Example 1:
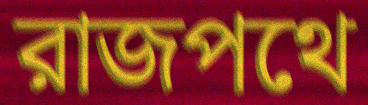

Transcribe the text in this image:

রাজপথে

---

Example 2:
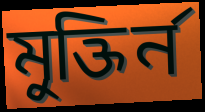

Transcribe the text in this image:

মুক্তির্ন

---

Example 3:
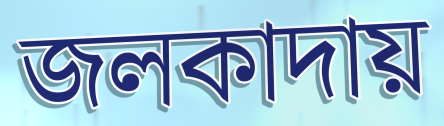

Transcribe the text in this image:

জলকাদায়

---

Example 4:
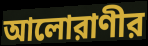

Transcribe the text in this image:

আলোরাণীর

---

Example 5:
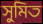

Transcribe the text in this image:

সুমিত